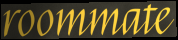
roommate